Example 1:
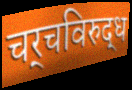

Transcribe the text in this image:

चर्चविरुद्ध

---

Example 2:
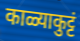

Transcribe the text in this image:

काळ्याकुट्टं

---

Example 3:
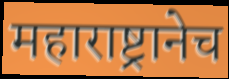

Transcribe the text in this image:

महाराष्ट्रानेच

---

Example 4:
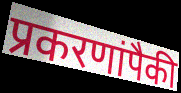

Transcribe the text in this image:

प्रकरणांपैकी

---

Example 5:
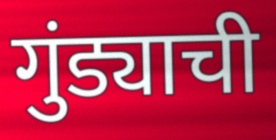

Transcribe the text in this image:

गुंड्याची